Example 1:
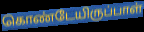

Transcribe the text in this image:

கொண்டேயிருப்பாள்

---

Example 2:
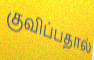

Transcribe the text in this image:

குவிப்பதால்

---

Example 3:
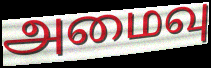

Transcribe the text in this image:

அமைவு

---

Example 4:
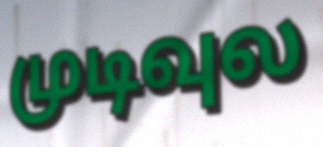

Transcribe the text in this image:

முடிவுல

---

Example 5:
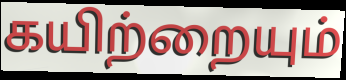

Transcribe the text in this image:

கயிற்றையும்